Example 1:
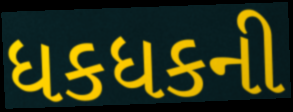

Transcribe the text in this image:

ધકધકની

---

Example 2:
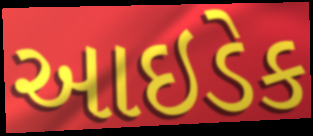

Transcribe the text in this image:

આઇડેક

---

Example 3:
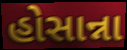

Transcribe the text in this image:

હોસાન્ના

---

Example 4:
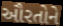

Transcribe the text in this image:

ઔરતોને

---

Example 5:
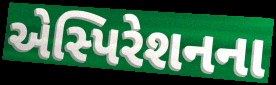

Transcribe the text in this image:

એસ્પિરેશનના